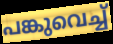
പങ്കുവെച്ച്